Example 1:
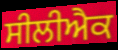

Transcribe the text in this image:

ਸੀਲੀਐਕ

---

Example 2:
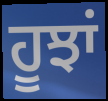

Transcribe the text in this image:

ਹੂਝਾਂ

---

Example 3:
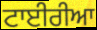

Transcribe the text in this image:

ਟਾਈਰੀਆ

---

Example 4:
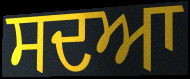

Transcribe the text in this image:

ਸਦਆ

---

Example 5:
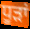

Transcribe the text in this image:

ਧੂੜਾਂ